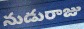
నుడురాజు